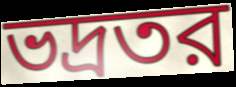
ভদ্রতর